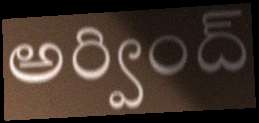
అర్వింద్